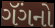
ગૅંગનો